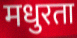
मधुरता